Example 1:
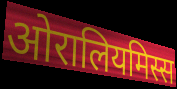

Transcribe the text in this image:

ओरालियमिस्स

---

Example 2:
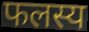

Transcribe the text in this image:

फलस्य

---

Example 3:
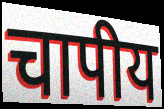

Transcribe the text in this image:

चापीय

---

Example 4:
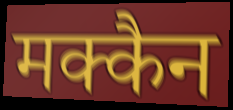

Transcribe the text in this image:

मक्कैन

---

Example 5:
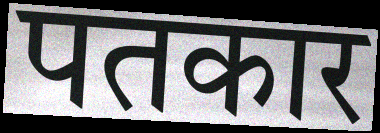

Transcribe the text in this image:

पतकार